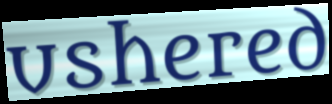
ushered